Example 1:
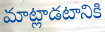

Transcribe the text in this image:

మాట్లాడటానికి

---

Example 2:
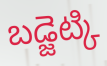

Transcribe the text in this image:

బడ్జెట్కి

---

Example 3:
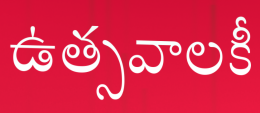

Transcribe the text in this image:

ఉత్సవాలకీ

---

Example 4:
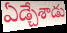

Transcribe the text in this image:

ఏడ్చేశాడు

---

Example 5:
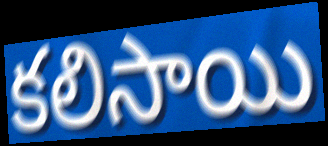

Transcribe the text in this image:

కలిసాయి